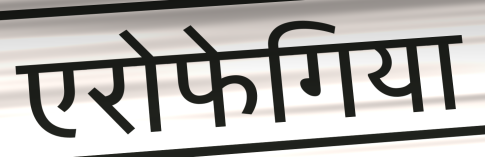
एरोफेगिया